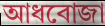
আধবোজা